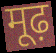
मूढ़